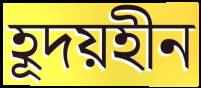
হূদয়হীন